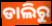
ଡାଲିରୁ